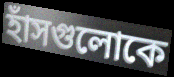
হাঁসগুলোকে